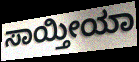
ಸಾಯ್ತೀಯಾ